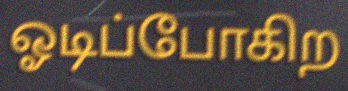
ஓடிப்போகிற